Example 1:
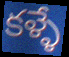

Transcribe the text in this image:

కళ్ళే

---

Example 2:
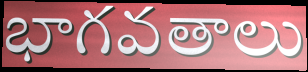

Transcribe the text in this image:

భాగవతాలు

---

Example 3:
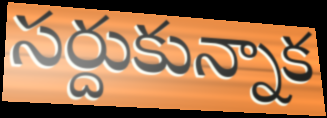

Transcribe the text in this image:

సర్దుకున్నాక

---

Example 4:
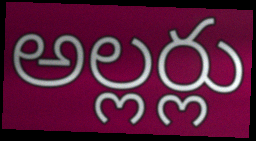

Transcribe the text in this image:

అల్లర్లు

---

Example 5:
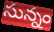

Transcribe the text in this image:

సున్నం